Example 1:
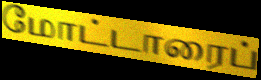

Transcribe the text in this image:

மோட்டாரைப்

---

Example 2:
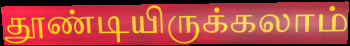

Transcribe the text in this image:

தூண்டியிருக்கலாம்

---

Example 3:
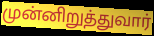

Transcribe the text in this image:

முன்னிறுத்துவார்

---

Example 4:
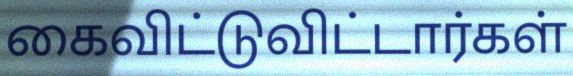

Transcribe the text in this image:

கைவிட்டுவிட்டார்கள்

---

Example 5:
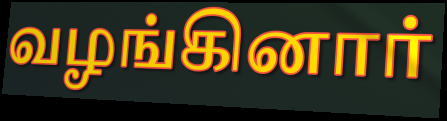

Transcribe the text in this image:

வழங்கினார்